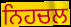
ਨਿਹਚਲ